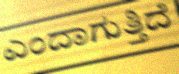
ಎಂದಾಗುತ್ತಿದೆ